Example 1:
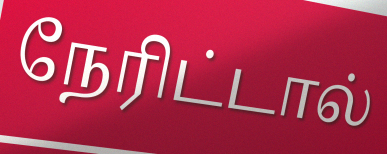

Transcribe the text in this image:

நேரிட்டால்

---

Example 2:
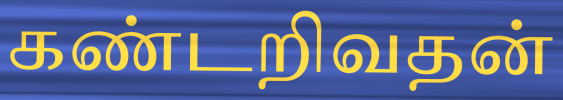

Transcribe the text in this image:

கண்டறிவதன்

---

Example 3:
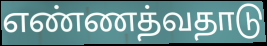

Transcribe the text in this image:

எண்ணத்வதாடு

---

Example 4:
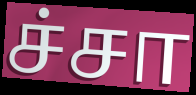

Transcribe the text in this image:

ச்சா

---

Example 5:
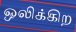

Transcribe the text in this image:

ஒலிக்கிற